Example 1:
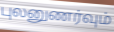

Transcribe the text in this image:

புலனுணர்வும்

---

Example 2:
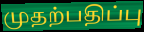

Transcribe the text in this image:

முதற்பதிப்பு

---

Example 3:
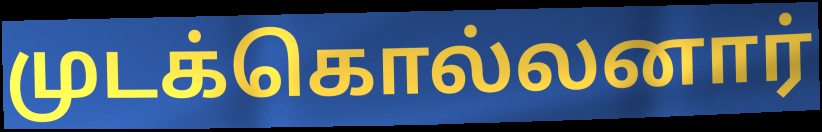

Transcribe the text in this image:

முடக்கொல்லனார்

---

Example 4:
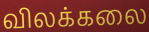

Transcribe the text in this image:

விலக்கலை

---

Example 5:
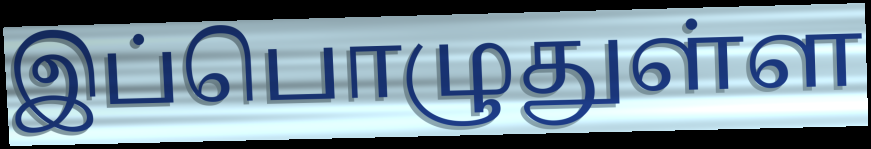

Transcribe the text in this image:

இப்பொழுதுள்ள